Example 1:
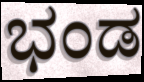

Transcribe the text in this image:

ಭಂಡ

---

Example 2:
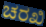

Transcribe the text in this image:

ಚರಖಿ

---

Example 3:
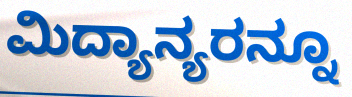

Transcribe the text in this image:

ಮಿದ್ಯಾನ್ಯರನ್ನೂ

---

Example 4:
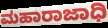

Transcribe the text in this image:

ಮಹಾರಾಜಾಧಿ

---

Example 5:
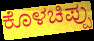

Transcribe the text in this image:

ಕೊಳಚಿಪ್ಪು